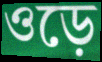
ওড়ে